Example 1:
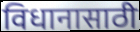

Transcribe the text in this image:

विधानासाठी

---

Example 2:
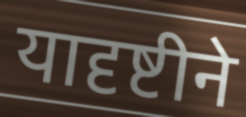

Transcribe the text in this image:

यादृष्टीने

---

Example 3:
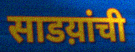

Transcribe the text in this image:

साडय़ांची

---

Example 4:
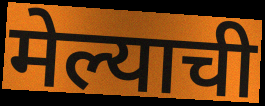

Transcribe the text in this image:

मेल्याची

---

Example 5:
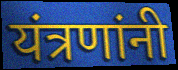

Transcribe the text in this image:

यंत्रणांनी